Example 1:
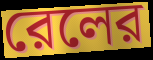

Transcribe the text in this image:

রেলের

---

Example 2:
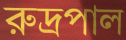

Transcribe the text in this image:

রুদ্রপাল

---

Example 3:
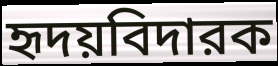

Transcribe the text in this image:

হৃদয়বিদারক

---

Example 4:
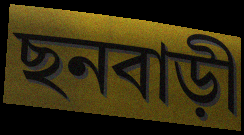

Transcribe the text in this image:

ছনবাড়ী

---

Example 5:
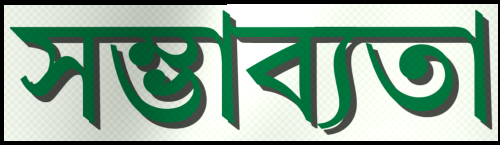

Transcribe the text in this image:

সম্ভাব্যতা